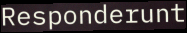
Responderunt